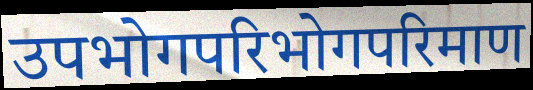
उपभोगपरिभोगपरिमाण